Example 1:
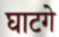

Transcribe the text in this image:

घाटगे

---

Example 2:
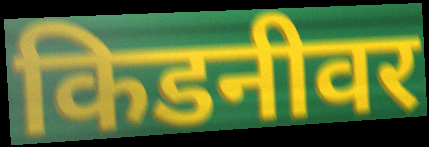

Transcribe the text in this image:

किडनीवर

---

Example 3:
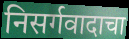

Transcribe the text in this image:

निसर्गवादाचा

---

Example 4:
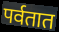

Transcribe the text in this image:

पर्वतात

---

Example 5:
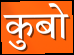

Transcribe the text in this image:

कुबो